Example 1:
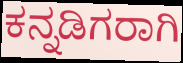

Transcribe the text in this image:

ಕನ್ನಡಿಗರಾಗಿ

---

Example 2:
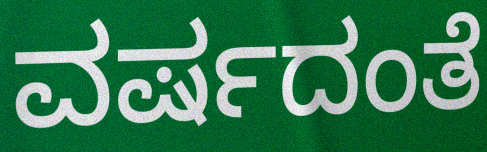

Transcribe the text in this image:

ವರ್ಷದಂತೆ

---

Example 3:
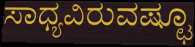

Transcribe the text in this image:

ಸಾಧ್ಯವಿರುವಷ್ಟೂ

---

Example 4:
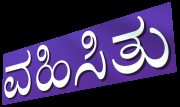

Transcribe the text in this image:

ವಹಿಸಿತು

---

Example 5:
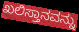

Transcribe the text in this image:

ಖಲಿಸ್ತಾನವನ್ನು